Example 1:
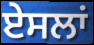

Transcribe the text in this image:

ਏਸਲਾਂ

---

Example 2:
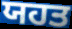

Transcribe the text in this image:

ਯਹਤ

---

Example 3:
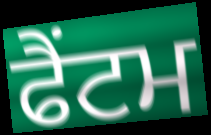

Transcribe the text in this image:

ਫੈਂਟਮ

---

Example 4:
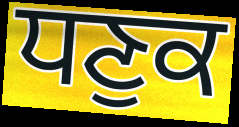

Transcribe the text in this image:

ਧਣੁਕ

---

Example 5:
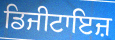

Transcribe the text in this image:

ਡਿਜੀਟਾਇਜ਼